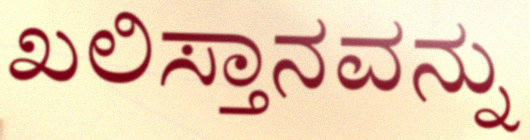
ಖಲಿಸ್ತಾನವನ್ನು